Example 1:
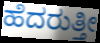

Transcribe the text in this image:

ಹೆದರುತ್ತೀ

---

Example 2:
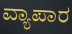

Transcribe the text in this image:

ವ್ಯಾಪಾರ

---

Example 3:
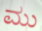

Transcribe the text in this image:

ಮು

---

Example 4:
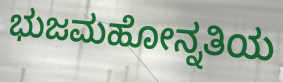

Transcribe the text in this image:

ಭುಜಮಹೋನ್ನತಿಯ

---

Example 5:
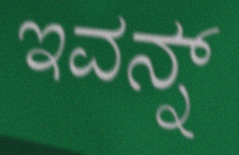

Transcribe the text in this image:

ಇವನ್ನ್